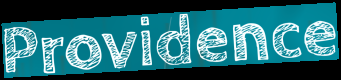
Providence